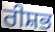
ਰੀਸ਼ਭ